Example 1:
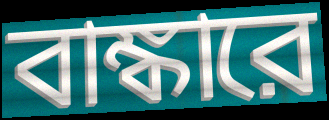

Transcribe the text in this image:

বাঙ্কারে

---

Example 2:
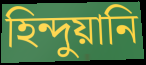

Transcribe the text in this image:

হিন্দুয়ানি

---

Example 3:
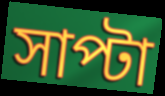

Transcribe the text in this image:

সাপ্টা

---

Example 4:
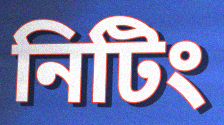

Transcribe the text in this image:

নিটিং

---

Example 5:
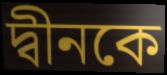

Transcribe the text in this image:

দ্বীনকে